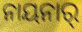
ନାୟନାର୍